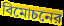
বিমোচনের